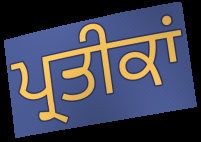
ਪ੍ਰਤੀਕਾਂ